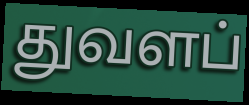
துவளப்